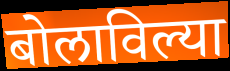
बोलाविल्या